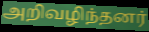
அறிவழிந்தனர்